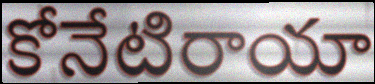
కోనేటిరాయా